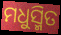
ମଧୁସ୍ମିତ